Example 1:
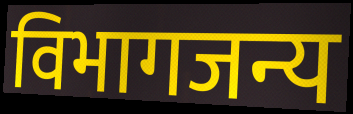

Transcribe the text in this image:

विभागजन्य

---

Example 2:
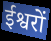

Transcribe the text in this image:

ईश्वरों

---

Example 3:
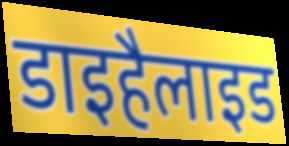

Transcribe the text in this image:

डाइहैलाइड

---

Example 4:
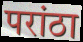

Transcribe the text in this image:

परांठा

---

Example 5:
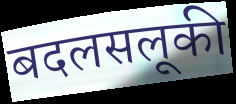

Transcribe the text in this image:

बदलसलूकी